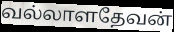
வல்லாளதேவன்